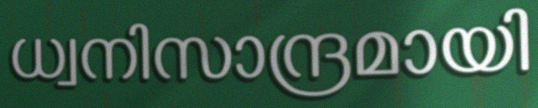
ധ്വനിസാന്ദ്രമായി